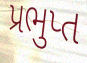
પ્રભુપ્ત